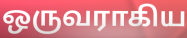
ஒருவராகிய